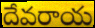
దేవరాయ